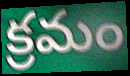
క్రమం